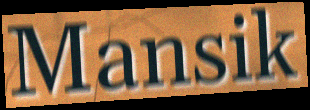
Mansik